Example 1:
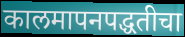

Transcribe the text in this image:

कालमापनपद्धतीचा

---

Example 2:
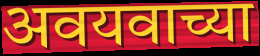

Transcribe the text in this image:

अवयवाच्या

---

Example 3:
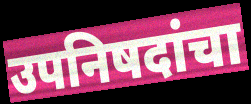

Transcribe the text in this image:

उपनिषदांचा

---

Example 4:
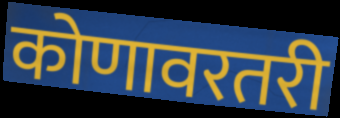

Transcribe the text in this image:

कोणावरतरी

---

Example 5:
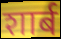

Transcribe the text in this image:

शार्ब